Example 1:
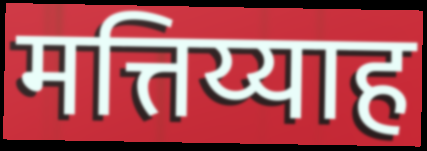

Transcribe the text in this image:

मत्तिय्याह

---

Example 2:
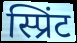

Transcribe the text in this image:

स्प्रिंट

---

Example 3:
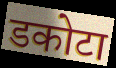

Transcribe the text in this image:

डकोटा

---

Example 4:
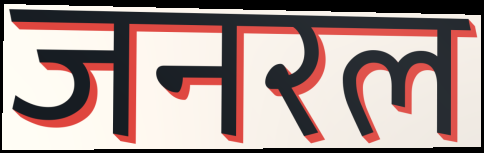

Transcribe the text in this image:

जनरल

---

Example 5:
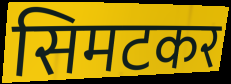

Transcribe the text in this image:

सिमटकर